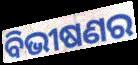
ବିଭୀଷଣର